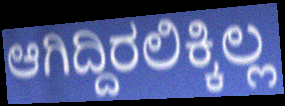
ಆಗಿದ್ದಿರಲಿಕ್ಕಿಲ್ಲ